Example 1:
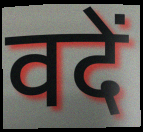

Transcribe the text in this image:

वदें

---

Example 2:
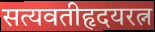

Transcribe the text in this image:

सत्यवतीहृदयरत्न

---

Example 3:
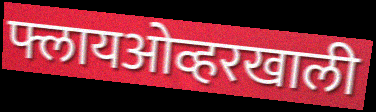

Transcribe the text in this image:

फ्लायओव्हरखाली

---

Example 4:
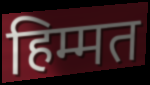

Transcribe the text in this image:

हिम्मत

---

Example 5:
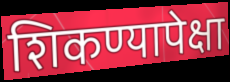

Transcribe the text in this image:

शिकण्यापेक्षा